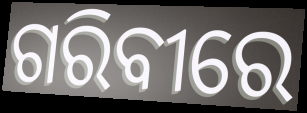
ଗରିବୀରେ